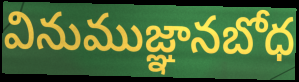
వినుముజ్ఞానబోధ